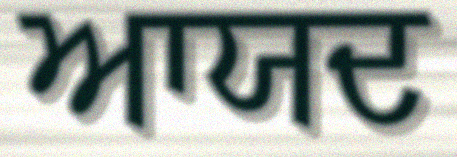
ਆਯਦ